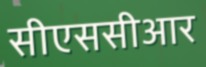
सीएससीआर